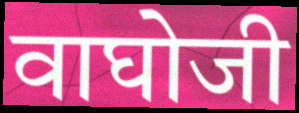
वाघोजी